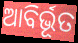
ଆବିର୍ଭୂତ